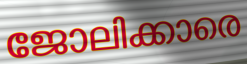
ജോലിക്കാരെ